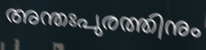
അന്തഃപുരത്തിനും